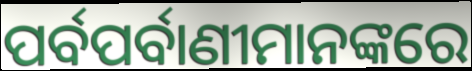
ପର୍ବପର୍ବାଣୀମାନଙ୍କରେ